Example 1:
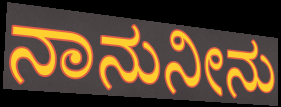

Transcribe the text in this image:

ನಾನುನೀನು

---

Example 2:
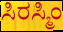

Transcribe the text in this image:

ಸಿರಸ್ಮಿಂ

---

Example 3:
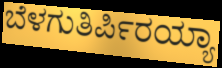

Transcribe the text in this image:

ಬೆಳಗುತಿರ್ಪಿರಯ್ಯಾ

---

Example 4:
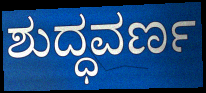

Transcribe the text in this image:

ಶುದ್ಧವರ್ಣ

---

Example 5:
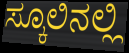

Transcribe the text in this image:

ಸ್ಕೂಲಿನಲ್ಲಿ